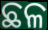
ଛଳ